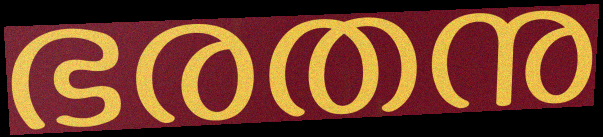
ഭരതനു